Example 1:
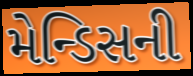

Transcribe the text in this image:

મેન્ડિસની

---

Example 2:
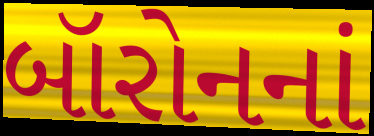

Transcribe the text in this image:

બૉરોનનાં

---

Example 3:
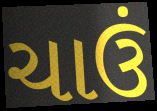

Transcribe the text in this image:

ચાઉં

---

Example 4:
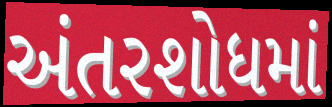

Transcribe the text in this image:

અંતરશોધમાં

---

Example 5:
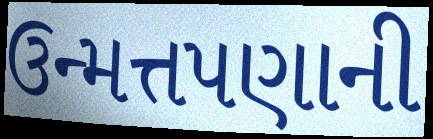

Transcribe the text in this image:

ઉન્મત્તપણાની